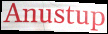
Anustup